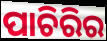
ପାଚିରିର